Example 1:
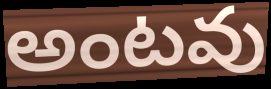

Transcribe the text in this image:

అంటవు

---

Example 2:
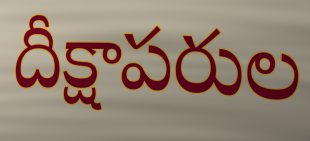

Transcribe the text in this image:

దీక్షాపరుల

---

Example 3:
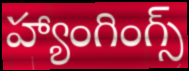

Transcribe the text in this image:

హ్యాంగింగ్స్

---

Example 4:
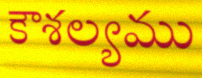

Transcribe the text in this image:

కౌశల్యము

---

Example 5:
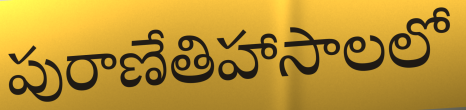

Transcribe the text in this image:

పురాణేతిహాసాలలో